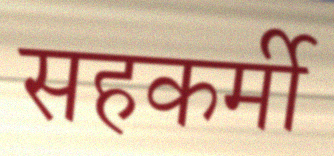
सहकर्मी